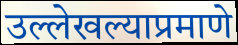
उल्लेखल्याप्रमाणे